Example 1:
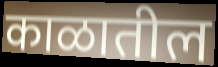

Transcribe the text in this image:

काळातील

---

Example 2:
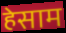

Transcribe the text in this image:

हेसाम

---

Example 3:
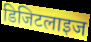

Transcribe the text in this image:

डिजिटलाइज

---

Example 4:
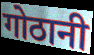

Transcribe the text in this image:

गोठानी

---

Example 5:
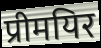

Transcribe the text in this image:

प्रीमयिर